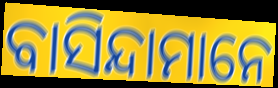
ବାସିନ୍ଦାମାନେ